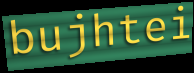
bujhtei